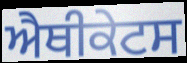
ਐਥੀਕੇਟਸ